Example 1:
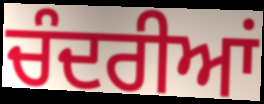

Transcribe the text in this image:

ਚੰਦਰੀਆਂ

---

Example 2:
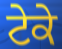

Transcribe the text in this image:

ਟੇਕੇ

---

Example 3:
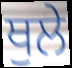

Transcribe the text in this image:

ਥੁਲੇ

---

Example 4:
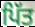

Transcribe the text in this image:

ਪਿੱਤ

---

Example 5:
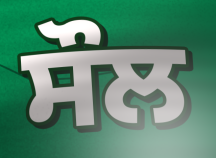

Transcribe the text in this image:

ਸੌਲ